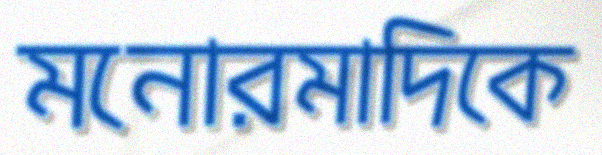
মনোরমাদিকে